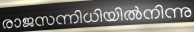
രാജസന്നിധിയിൽനിന്നു